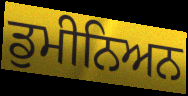
ਡੁਮੀਨਿਅਨ